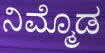
ನಿಮ್ಮೊಡ